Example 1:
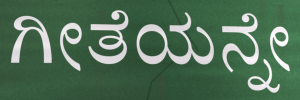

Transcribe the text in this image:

ಗೀತೆಯನ್ನೇ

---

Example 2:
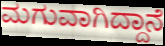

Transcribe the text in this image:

ಮಗುವಾಗಿದ್ದಾನೆ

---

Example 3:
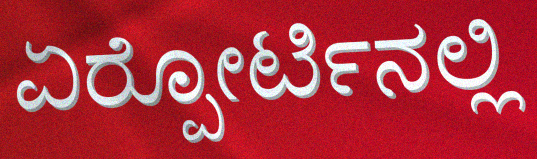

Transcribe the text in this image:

ಏರ್‍ಪೋರ್ಟಿನಲ್ಲಿ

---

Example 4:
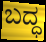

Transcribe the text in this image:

ಬದ್ಧ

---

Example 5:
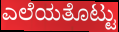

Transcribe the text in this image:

ಎಲೆಯತೊಟ್ಟು